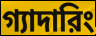
গ্যাদারিং